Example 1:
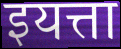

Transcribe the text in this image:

इयत्ता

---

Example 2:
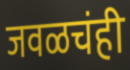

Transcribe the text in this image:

जवळचंही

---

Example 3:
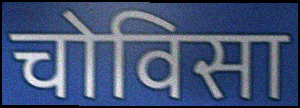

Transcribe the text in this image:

चोविसा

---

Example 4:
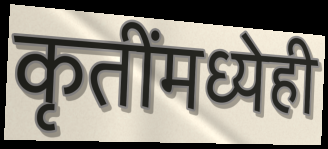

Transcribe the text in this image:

कृतींमध्येही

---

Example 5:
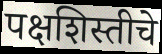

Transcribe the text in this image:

पक्षशिस्तीचे